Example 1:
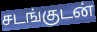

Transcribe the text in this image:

சடங்குடன்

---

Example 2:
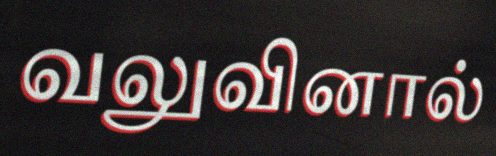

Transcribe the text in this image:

வலுவினால்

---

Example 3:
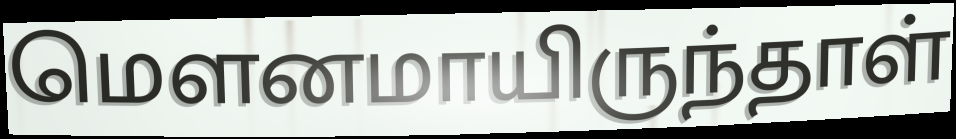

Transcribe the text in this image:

மௌனமாயிருந்தாள்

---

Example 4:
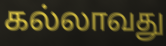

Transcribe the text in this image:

கல்லாவது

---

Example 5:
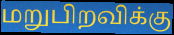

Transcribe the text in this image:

மறுபிறவிக்கு